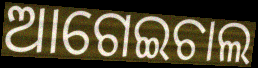
ଆଗେଇଚାଲ